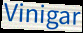
Vinigar